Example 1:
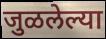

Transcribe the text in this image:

जुळलेल्या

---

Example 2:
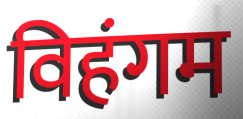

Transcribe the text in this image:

विहंगम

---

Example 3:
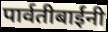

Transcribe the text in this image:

पार्वतीबाईंनी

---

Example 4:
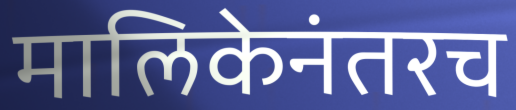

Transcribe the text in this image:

मालिकेनंतरच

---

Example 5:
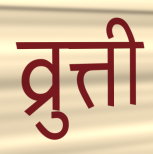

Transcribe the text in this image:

व्रुत्ती